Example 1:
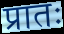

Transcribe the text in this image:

प्रातः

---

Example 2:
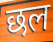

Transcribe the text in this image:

छल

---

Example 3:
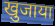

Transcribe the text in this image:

खुजाया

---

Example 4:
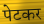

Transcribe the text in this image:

पेटकर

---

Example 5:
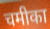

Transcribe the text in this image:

चमीका